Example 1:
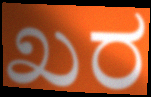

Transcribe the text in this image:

ಖರ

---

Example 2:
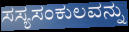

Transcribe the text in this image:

ಸಸ್ಯಸಂಕುಲವನ್ನು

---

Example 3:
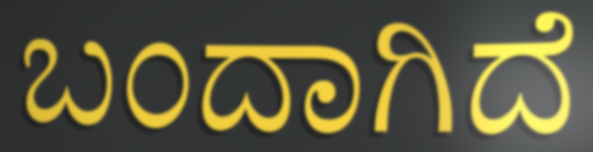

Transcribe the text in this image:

ಬಂದಾಗಿದೆ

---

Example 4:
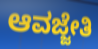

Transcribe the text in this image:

ಆವಜ್ಜೇತಿ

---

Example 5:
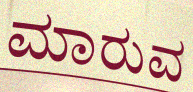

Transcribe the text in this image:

ಮಾರುವ